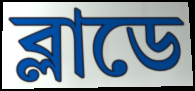
ব্লাডে